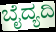
ಬೈದ್ಯದಿ